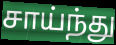
சாய்ந்து